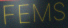
FEMS